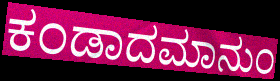
ಕಂಡಾದಮಾನುಂ